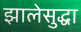
झालेसुद्धा